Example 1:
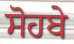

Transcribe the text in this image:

ਸੋਹਬੇ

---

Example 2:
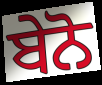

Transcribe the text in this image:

ਬੇਨੋ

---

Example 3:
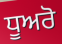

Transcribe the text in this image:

ਧੂਅਰੋ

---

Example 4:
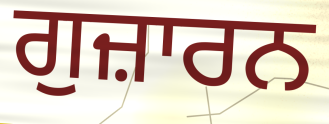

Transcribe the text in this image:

ਗੁਜ਼ਾਰਨ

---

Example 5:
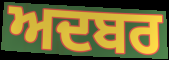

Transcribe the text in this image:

ਅਦਬਰ